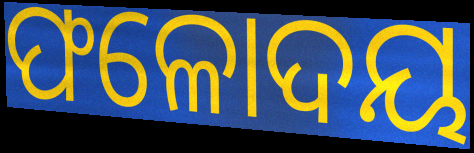
ଫଳୋଦୟ